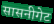
सासनीगेट